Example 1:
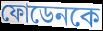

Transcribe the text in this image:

ফোডেনকে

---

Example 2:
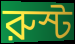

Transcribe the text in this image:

রুস্ট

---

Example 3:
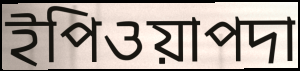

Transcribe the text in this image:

ইপিওয়াপদা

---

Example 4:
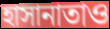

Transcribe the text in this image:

হাসানাতাও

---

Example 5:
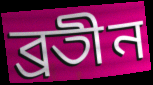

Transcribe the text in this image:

ব্রতীন